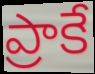
ప్రాకే